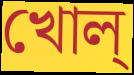
খোল্